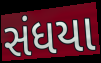
સંધયા